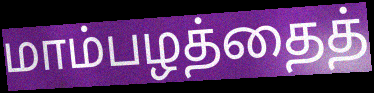
மாம்பழத்தைத்